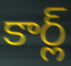
కార్ల్